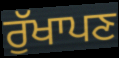
ਰੁੱਖਾਪਣ